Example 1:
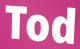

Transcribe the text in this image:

Tod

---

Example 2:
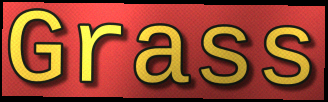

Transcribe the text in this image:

Grass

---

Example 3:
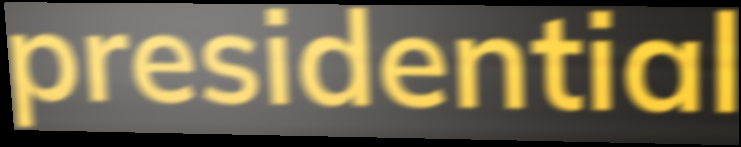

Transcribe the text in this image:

presidential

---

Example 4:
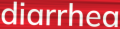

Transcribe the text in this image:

diarrhea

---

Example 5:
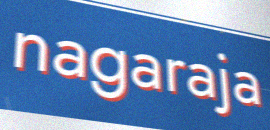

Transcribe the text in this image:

nagaraja